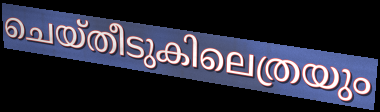
ചെയ്തീടുകിലെത്രയും